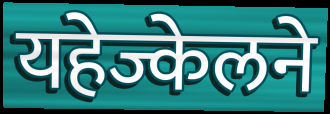
यहेज्केलने